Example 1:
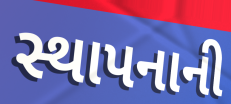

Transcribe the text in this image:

સ્થાપનાની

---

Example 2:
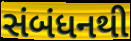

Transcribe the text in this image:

સંબંધનથી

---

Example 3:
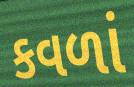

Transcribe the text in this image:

કવળાં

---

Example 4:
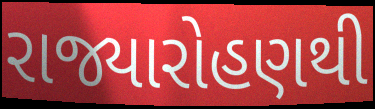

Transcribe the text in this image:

રાજ્યારોહણથી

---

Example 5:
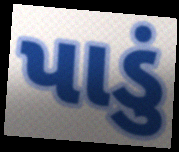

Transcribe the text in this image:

પાડું